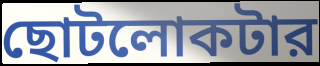
ছোটলোকটার